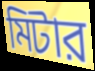
মিটার